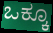
ಒಕ್ಕೂ